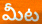
మీట